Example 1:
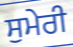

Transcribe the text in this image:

ਸੁਮੇਰੀ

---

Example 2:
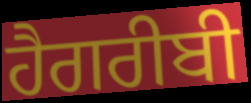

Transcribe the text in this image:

ਹੈਗਰੀਬੀ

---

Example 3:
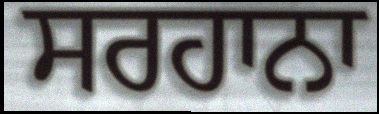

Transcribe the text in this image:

ਸਰਹਾਨਾ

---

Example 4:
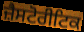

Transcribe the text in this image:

ਜ਼ੈਸਟੋਰੀਟਿਕ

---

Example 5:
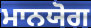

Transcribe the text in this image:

ਮਾਨਯੋਗ